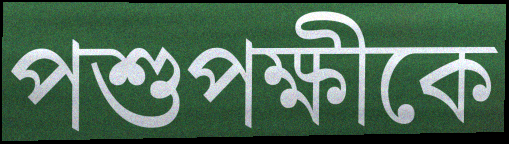
পশুপক্ষীকে